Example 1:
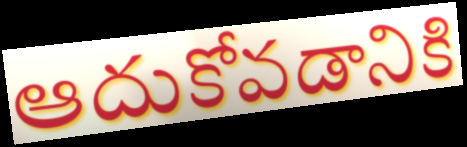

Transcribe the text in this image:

ఆదుకోవడానికి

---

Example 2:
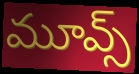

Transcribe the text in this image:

మూవ్స్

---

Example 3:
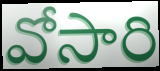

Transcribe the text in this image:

వోసారి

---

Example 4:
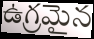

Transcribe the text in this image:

ఉగ్రమైన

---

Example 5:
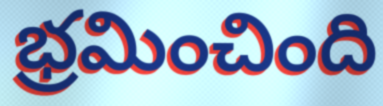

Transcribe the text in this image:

భ్రమించింది